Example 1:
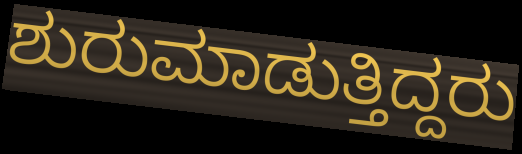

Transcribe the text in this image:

ಶುರುಮಾಡುತ್ತಿದ್ದರು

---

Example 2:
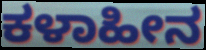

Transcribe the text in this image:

ಕಳಾಹೀನ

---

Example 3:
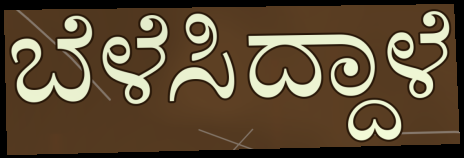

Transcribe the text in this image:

ಬೆಳೆಸಿದ್ದಾಳೆ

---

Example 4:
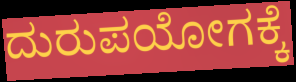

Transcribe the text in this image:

ದುರುಪಯೋಗಕ್ಕೆ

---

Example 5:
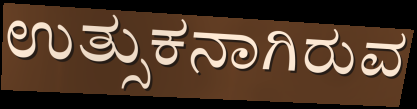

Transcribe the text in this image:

ಉತ್ಸುಕನಾಗಿರುವ